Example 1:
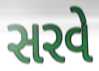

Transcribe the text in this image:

સરવે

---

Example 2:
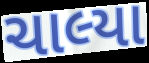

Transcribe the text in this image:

ચાલ્યા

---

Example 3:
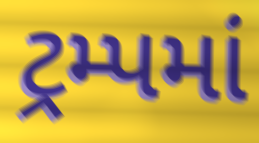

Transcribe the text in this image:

ટ્રમ્પમાં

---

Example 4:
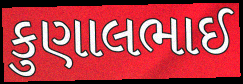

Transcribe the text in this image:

કુણાલભાઈ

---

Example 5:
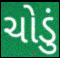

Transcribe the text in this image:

ચોડું